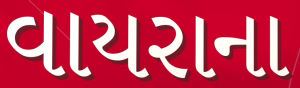
વાયરાના